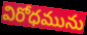
విరోధమును